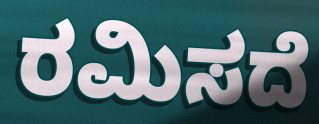
ರಮಿಸದೆ